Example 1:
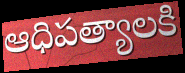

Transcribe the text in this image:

ఆధిపత్యాలకి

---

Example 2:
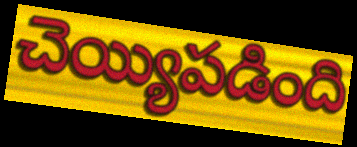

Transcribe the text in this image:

చెయ్యిపడింది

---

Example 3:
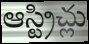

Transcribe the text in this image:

ఆస్ట్రిచ్లు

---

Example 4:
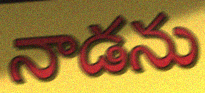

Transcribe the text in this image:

నాడను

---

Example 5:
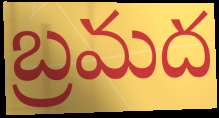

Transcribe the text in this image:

బ్రమద